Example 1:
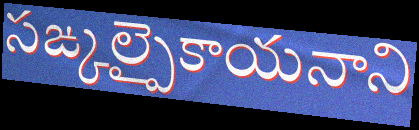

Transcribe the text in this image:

సఙ్కల్పైకాయనాని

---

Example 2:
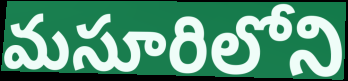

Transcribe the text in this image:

మసూరిలోని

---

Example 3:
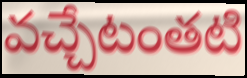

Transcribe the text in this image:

వచ్చేటంతటి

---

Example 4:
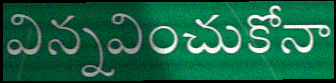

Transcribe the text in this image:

విన్నవించుకోనా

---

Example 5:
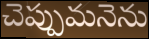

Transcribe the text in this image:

చెప్పుమనెను